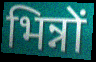
भिन्नों